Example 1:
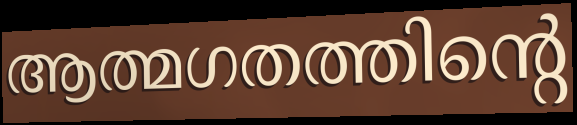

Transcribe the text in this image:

ആത്മഗതത്തിന്റെ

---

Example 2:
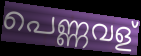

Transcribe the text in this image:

പെണ്ണവള്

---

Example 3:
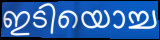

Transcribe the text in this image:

ഇടിയൊച്ച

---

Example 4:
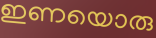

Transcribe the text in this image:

ഇണയൊരു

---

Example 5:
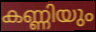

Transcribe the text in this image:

കണ്ണിയും